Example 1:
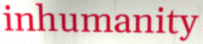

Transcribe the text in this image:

inhumanity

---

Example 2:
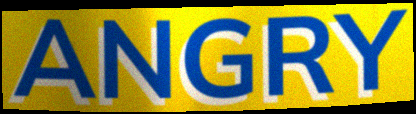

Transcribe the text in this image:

ANGRY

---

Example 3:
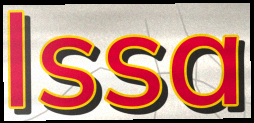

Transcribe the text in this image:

Issa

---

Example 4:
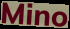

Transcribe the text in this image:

Mino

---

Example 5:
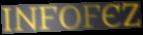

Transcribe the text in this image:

INFOFEZ